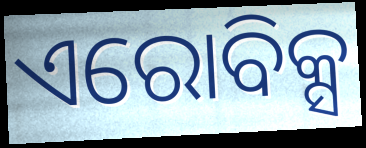
ଏରୋବିକ୍ସ